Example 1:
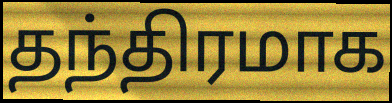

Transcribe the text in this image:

தந்திரமாக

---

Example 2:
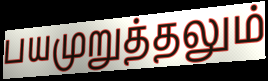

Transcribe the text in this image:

பயமுறுத்தலும்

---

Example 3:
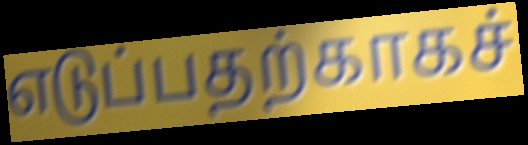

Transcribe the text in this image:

எடுப்பதற்காகச்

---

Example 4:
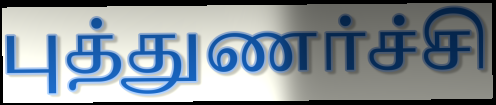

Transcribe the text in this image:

புத்துணர்ச்சி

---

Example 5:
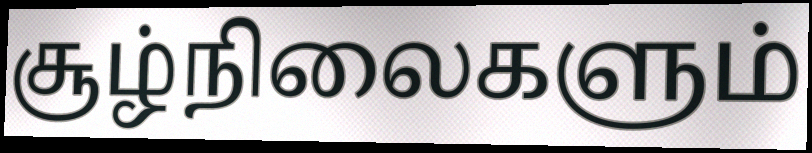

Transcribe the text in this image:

சூழ்நிலைகளும்